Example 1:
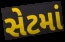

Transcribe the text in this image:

સેટમાં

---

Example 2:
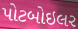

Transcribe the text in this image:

પોટબોઇલર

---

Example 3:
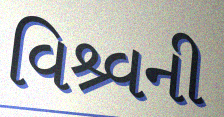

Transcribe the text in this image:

વિશ્ર્વની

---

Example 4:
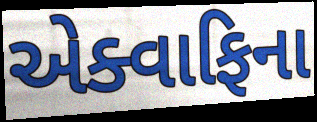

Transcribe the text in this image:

એક્વાફિના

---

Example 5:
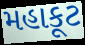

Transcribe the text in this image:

મહાકૂટ